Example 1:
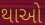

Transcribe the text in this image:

થાઓ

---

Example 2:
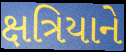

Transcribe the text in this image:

ક્ષત્રિયાને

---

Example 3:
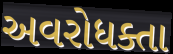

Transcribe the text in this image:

અવરોધક્તા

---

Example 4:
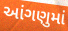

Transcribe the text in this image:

આંગણુમાં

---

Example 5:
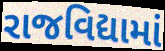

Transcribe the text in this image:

રાજવિદ્યામાં